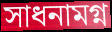
সাধনামগ্ন